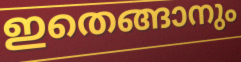
ഇതെങ്ങാനും